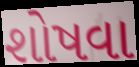
શોષવા